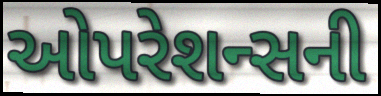
ઓપરેશન્સની